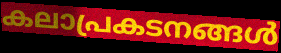
കലാപ്രകടനങ്ങൾ